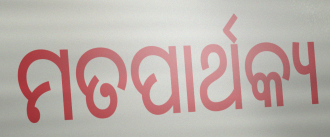
ମତପାର୍ଥକ୍ୟ